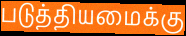
படுத்தியமைக்கு